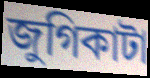
জুগিকাটা